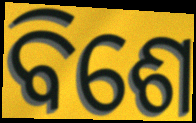
ବିଶେ